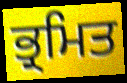
ਭ੍ਰਮਿਤ